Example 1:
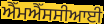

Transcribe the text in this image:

ਐੱਮਐੱਸਸੀਆਈ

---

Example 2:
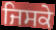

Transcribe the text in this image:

ਜਿਸਕੇ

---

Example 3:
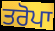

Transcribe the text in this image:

ਤਰੋਪਾ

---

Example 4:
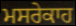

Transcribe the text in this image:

ਮਸਰੇਕਾਹ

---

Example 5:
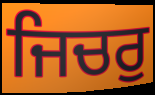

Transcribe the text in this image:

ਜਿਚਰੁ